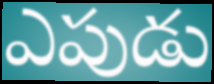
ఎపుడు